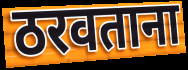
ठरवताना